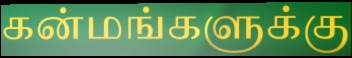
கன்மங்களுக்கு